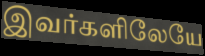
இவர்களிலேயே